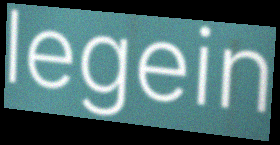
legein